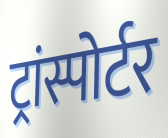
ट्रांस्पोर्टर